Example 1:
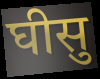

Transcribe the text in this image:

घीसु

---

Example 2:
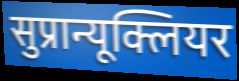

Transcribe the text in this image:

सुप्रान्यूक्लियर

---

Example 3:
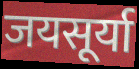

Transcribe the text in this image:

जयसूर्या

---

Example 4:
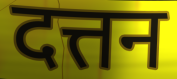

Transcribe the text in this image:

दत्तन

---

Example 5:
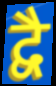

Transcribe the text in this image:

द्वै